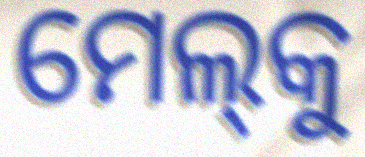
ମେଲ୍‌କୁ